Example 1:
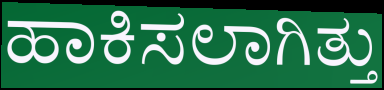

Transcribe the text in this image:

ಹಾಕಿಸಲಾಗಿತ್ತು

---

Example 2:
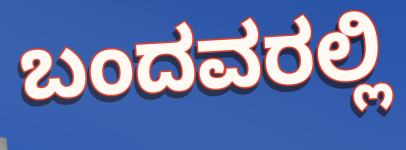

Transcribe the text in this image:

ಬಂದವರಲ್ಲಿ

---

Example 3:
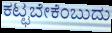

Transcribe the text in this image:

ಕಟ್ಟಬೇಕೆಂಬುದು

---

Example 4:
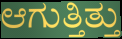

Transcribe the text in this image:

ಆಗುತ್ತಿತ್ತು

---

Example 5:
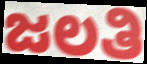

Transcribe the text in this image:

ಜಲತಿ